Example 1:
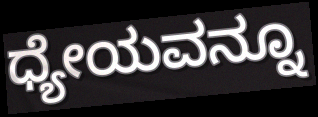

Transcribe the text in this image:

ಧ್ಯೇಯವನ್ನೂ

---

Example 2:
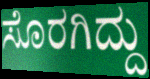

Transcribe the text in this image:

ಸೊರಗಿದ್ದು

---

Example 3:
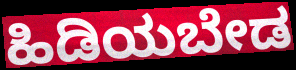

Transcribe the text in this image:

ಹಿಡಿಯಬೇಡ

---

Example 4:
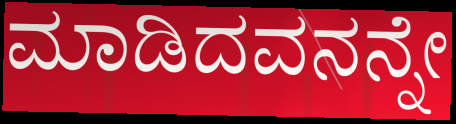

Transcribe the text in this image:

ಮಾಡಿದವನನ್ನೇ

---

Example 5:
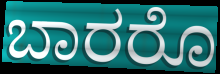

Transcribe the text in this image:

ಬಾರರೊ